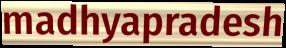
madhyapradesh